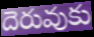
దెరువుకు